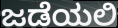
ಜಡೆಯಲಿ